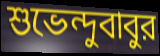
শুভেন্দুবাবুর